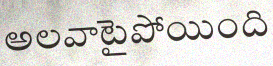
అలవాటైపోయింది